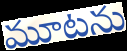
మూటను